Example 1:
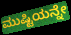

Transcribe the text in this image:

ಮುಷ್ಟಿಯನ್ನೇ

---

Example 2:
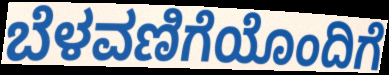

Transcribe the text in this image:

ಬೆಳವಣಿಗೆಯೊಂದಿಗೆ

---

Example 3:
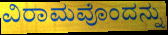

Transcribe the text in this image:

ವಿರಾಮವೊಂದನ್ನು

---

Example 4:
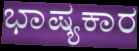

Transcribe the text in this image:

ಭಾಷ್ಯಕಾರ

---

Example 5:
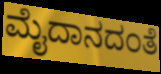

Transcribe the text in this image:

ಮೈದಾನದಂತೆ